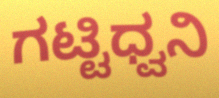
ಗಟ್ಟಿಧ್ವನಿ